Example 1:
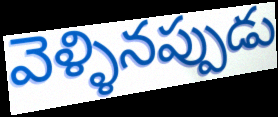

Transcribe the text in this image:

వెళ్ళినప్పుడు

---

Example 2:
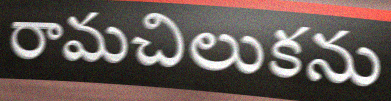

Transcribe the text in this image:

రామచిలుకను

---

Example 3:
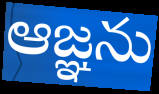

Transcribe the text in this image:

ఆజ్ఞను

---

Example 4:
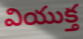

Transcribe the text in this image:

వియుక్త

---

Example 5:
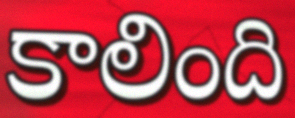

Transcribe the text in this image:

కాలింది